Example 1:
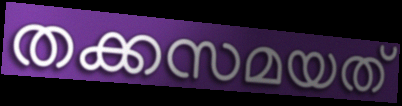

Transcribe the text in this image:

തക്കസമയത്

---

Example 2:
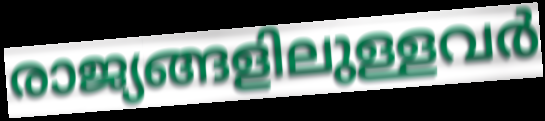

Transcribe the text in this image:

രാജ്യങ്ങളിലുള്ളവർ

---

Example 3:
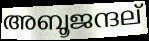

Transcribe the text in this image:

അബൂജന്ദല്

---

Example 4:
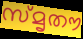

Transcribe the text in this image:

സ്മൃതൗ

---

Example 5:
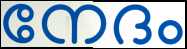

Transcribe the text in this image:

നേദം